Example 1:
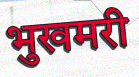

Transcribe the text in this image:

भुखमरी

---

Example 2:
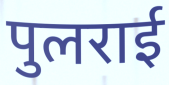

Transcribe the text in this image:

पुलराई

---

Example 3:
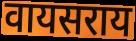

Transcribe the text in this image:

वायसराय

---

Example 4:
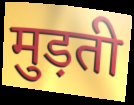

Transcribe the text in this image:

मुड़ती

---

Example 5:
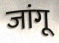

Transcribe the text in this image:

जांगू